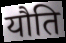
यौति